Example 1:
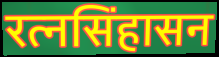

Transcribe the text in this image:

रत्नसिंहासन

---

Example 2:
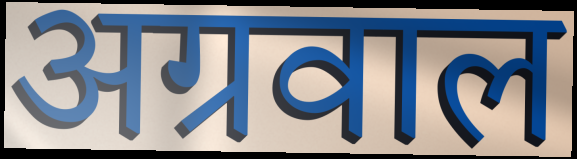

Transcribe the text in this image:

अग्रवाल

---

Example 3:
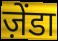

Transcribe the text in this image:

ज़ेंडा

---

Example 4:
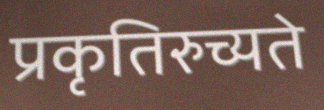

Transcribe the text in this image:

प्रकृतिरुच्यते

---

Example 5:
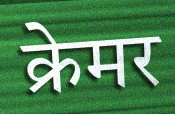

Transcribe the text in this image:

क्रेमर